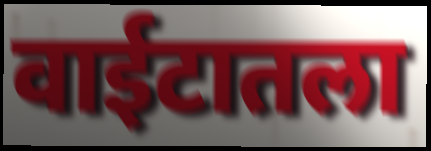
वाईटातला